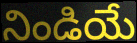
నిండియే